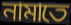
নামাতে